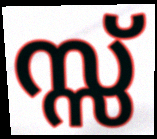
സ്സ്